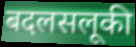
बदलसलूकी